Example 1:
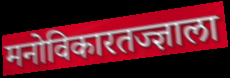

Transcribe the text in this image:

मनोविकारतज्ज्ञाला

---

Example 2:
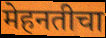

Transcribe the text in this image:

मेहनतीचा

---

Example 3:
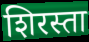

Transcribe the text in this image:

शिरस्ता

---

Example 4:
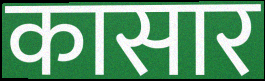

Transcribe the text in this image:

कासार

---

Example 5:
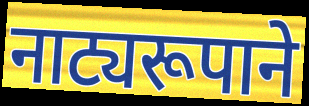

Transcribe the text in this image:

नाट्यरूपाने